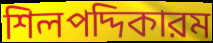
শিলপদ্দিকারম